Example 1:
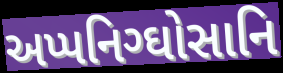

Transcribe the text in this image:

અપ્પનિગ્ઘોસાનિ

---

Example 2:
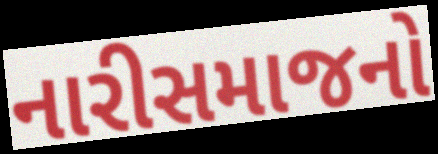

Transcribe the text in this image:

નારીસમાજનો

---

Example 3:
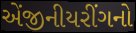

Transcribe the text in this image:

એંજીનીયરીંગનો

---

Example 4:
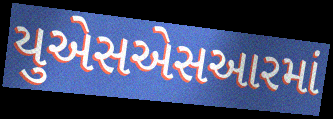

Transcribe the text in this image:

યુએસએસઆરમાં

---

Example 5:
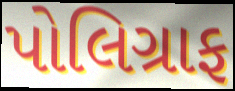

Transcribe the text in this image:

પોલિગ્રાફ